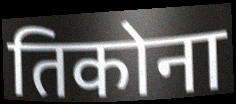
तिकोना